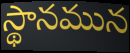
స్థానమున